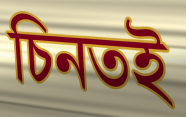
চিনতই